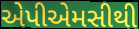
એપીએમસીથી